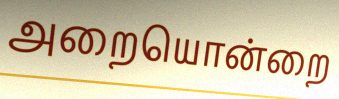
அறையொன்றை